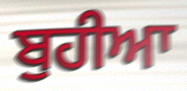
ਬੁਹੀਆ